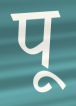
पू